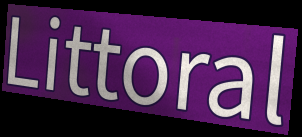
Littoral